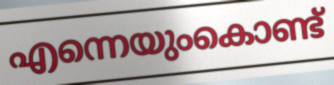
എന്നെയുംകൊണ്ട്